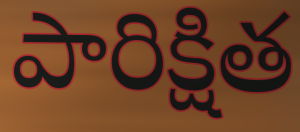
పారిక్షిత